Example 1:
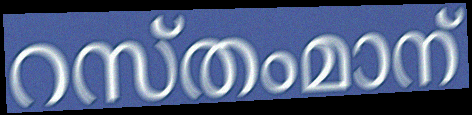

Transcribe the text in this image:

റസ്തംമാന്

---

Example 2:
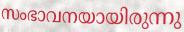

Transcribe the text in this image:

സംഭാവനയായിരുന്നു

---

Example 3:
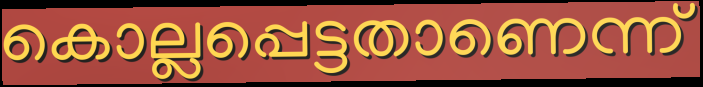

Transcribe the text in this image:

കൊല്ലപ്പെട്ടതാണെന്ന്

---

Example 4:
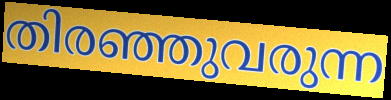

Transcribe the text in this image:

തിരഞ്ഞുവരുന്ന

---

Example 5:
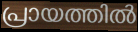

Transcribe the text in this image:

പ്രായത്തിൽ